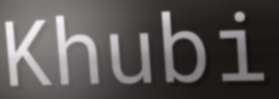
Khubi